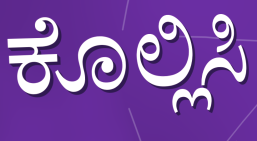
ಕೊಲ್ಲಿಸಿ